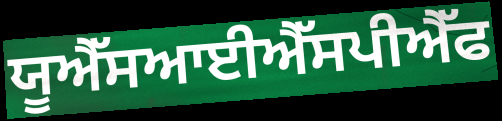
ਯੂਐੱਸਆਈਐੱਸਪੀਐੱਫ